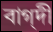
বাগ্‌দী